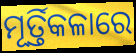
ମୂର୍ତ୍ତିକଳାରେ